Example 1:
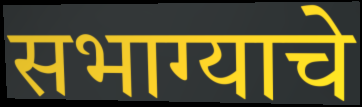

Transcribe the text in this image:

सभाग्याचे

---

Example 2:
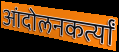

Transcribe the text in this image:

आंदोलनकर्त्यां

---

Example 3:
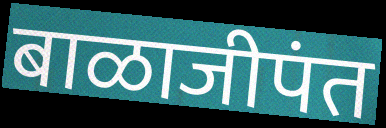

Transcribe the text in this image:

बाळाजीपंत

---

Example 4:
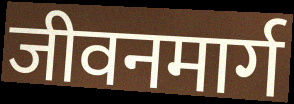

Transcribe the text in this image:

जीवनमार्ग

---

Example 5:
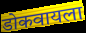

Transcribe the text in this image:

डोकवायला